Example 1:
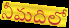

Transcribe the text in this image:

నీమదిలో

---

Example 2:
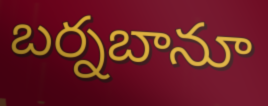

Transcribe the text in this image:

బర్నబానూ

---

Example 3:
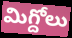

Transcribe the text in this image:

మిగ్దోలు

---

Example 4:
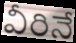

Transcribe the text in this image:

వీరినే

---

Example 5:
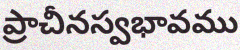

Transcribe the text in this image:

ప్రాచీనస్వభావము